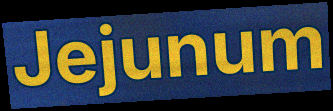
Jejunum